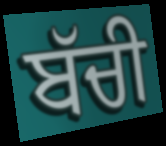
ਬੱਚੀ